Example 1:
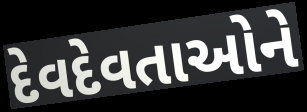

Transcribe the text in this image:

દેવદેવતાઓને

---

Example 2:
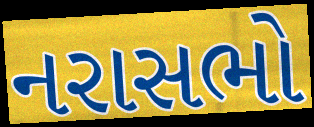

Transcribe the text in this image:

નરાસભો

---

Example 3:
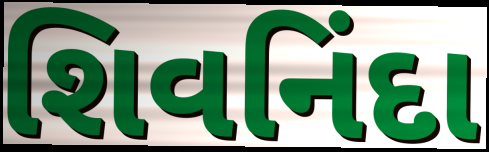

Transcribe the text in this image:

શિવનિંદા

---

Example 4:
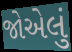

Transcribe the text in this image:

જોએલું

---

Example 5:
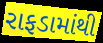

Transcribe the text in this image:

રાફડામાંથી